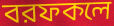
বরফকলে